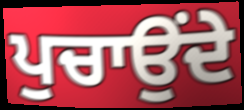
ਪੁਚਾਉਂਦੇ